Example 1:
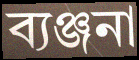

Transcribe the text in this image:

ব্যঞ্জনা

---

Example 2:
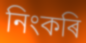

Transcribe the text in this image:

নিংকৰি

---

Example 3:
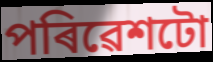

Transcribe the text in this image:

পৰিৱেশটো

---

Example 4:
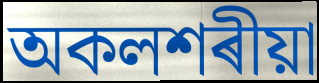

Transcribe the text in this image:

অকলশৰীয়া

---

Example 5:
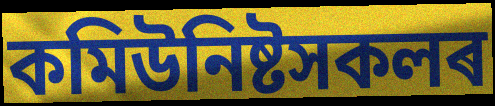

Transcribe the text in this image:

কমিউনিষ্টসকলৰ